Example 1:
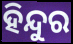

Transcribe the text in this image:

ହିନ୍ଦୁର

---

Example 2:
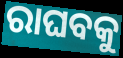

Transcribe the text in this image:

ରାଘବକୁ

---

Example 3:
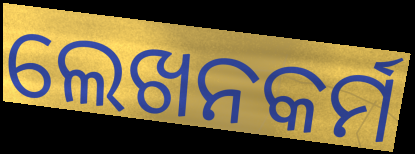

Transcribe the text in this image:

ଲେଖନକର୍ମ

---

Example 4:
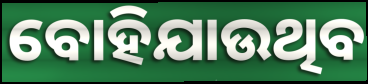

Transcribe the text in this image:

ବୋହିଯାଉଥିବ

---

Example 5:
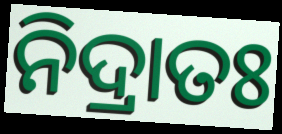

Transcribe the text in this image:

ନିଦ୍ରାତଃ